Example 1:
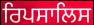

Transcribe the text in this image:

ਰਿਪਸਾਲਿਸ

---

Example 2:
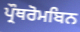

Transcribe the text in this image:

ਪ੍ਰੌਥਰੋਮਬਿਨ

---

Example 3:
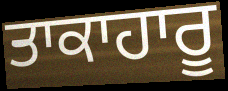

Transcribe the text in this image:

ਤਾਕਾਹਾਰੂ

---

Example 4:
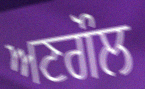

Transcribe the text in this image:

ਅਣਗੌਲ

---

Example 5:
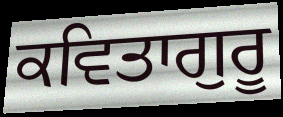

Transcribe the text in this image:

ਕਵਿਤਾਗੁਰੂ